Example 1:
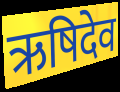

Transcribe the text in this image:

ऋषिदेव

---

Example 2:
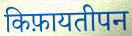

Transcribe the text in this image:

किफ़ायतीपन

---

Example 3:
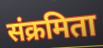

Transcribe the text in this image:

संक्रमिता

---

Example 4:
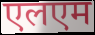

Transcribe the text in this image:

एलएम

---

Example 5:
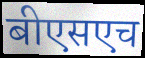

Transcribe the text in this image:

बीएसएच